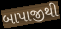
બાપાજીથી